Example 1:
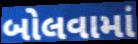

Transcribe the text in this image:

બોલવામાં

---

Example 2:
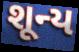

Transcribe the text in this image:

શૂન્ય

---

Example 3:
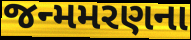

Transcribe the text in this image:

જન્મમરણના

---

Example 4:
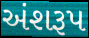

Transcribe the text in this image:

અંશરૂપ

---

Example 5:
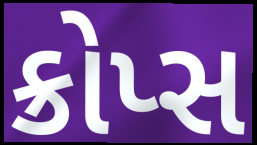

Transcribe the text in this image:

ક્રોપ્સ